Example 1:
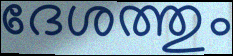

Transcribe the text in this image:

ദേശത്തും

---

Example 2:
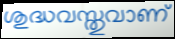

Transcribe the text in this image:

ശുദ്ധവസ്തുവാണ്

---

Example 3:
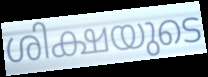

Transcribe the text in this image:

ശിക്ഷയുടെ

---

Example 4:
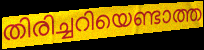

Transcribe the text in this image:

തിരിച്ചറിയെണ്ടാത്ത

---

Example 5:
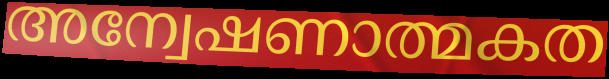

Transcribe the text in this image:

അന്വേഷണാത്മകത